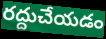
రద్దుచేయడం